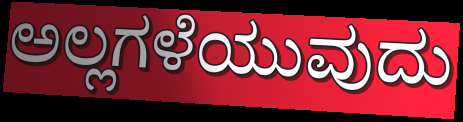
ಅಲ್ಲಗಳೆಯುವುದು